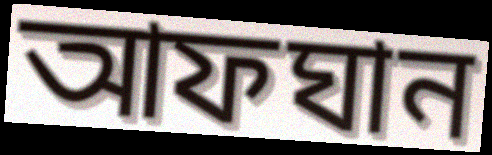
আফঘান